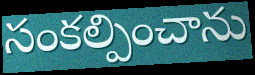
సంకల్పించాను